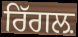
ਰਿੱਗਲ਼